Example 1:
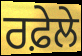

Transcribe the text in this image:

ਰਫ਼ੇਲੇ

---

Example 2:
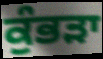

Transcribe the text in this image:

ਕੁੰਭੜਾ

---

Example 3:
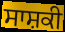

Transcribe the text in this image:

ਸਾਸ਼ਕੀ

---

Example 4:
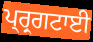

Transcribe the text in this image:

ਪ੍ਰ੍ਰਗਟਾਈ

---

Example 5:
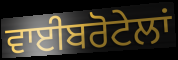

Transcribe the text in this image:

ਵਾਈਬਰੋਟੇਲਾਂ